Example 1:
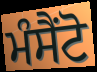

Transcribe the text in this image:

ਮੰਸੈਂਟੋ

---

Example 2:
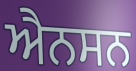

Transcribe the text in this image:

ਐਨਸਨ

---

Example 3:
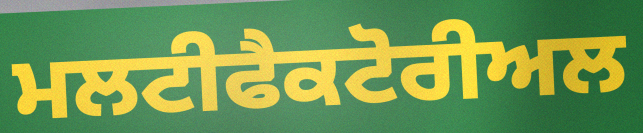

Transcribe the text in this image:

ਮਲਟੀਫੈਕਟੋਰੀਅਲ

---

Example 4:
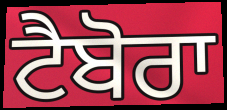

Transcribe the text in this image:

ਟੈਬੋਰਾ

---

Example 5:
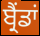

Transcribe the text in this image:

ਬ੍ਰੈਂਡਾਂ